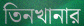
তিনখানার